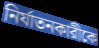
নির্যাতনকারীকে